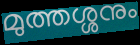
മുത്തശ്ശനും